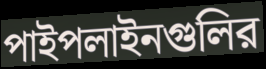
পাইপলাইনগুলির